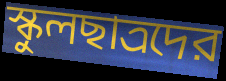
স্কুলছাত্রদের